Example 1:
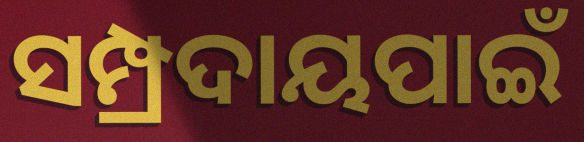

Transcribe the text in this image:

ସମ୍ପ୍ରଦାୟପାଇଁ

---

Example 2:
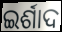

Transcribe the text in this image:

ଇର୍ଶାଦ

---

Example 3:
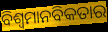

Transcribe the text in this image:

ବିଶ୍ଵମାନବିକତାର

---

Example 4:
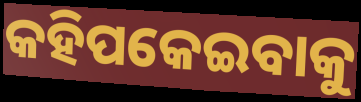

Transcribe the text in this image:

କହିପକେଇବାକୁ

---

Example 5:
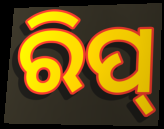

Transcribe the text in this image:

ରିପ୍